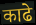
काढे